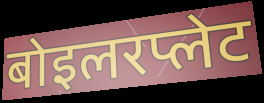
बोइलरप्लेट